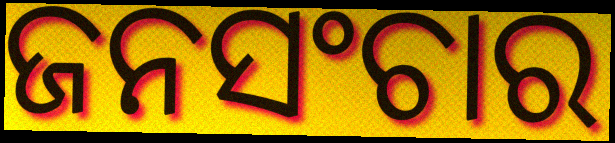
ଜନସଂଚାର